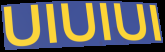
UIUIUI